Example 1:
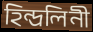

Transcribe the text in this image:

হিন্দ্রলিনী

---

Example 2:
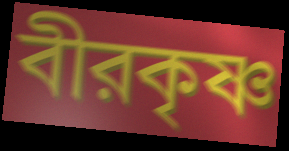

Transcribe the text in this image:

বীরকৃষ্ণ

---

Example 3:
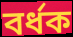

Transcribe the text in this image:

বর্ধক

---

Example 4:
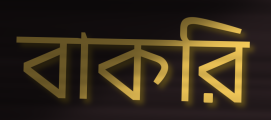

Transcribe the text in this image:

বাকরি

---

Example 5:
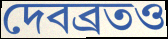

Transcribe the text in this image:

দেবব্রতও